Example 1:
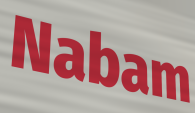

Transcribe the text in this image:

Nabam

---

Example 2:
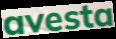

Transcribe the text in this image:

avesta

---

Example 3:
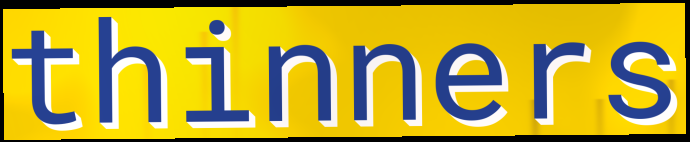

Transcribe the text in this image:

thinners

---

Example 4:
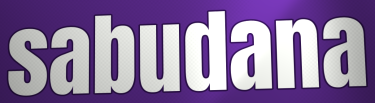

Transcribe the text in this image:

sabudana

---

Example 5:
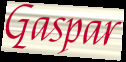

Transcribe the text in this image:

Gaspar